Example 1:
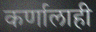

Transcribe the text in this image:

कर्णालाही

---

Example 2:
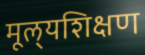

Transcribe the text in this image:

मूल्यशिक्षण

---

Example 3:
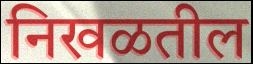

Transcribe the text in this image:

निखळतील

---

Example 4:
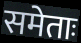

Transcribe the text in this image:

समेताः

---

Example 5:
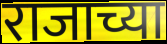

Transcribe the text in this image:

राजाच्या